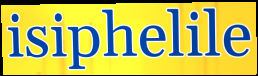
isiphelile